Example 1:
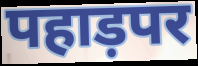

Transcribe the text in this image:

पहाड़पर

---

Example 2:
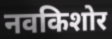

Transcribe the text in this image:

नवकिशोर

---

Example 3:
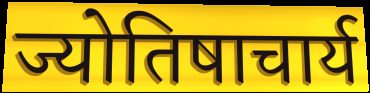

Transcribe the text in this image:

ज्योतिषाचार्य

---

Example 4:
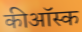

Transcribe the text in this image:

कीऑस्क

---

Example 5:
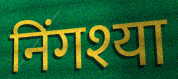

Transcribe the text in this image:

निंगश्या